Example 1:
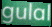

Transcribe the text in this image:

gulal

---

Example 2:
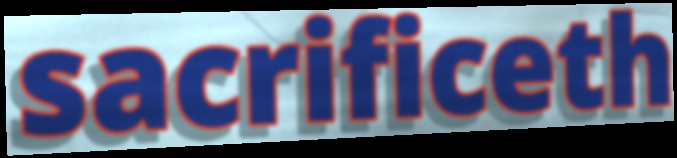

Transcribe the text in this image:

sacrificeth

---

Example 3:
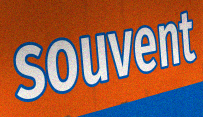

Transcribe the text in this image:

souvent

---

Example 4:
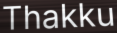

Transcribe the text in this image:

Thakku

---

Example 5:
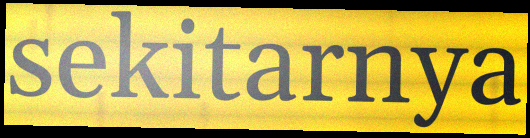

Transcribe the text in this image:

sekitarnya